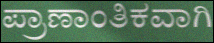
ಪ್ರಾಣಾಂತಿಕವಾಗಿ